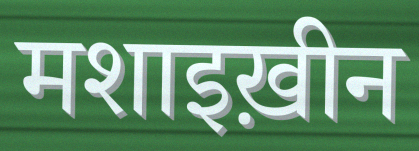
मशाइख़ीन